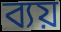
ব্যয়